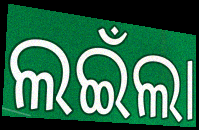
ଲଇଁଲା